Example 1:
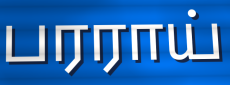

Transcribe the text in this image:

பரராய்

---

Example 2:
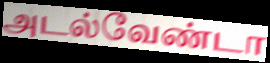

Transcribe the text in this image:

அடல்வேண்டா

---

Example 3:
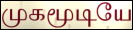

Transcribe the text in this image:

முகமூடியே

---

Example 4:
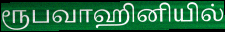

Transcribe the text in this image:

ரூபவாஹினியில்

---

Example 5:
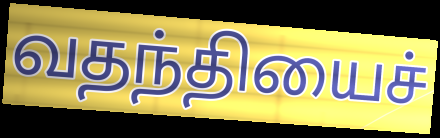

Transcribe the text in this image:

வதந்தியைச்